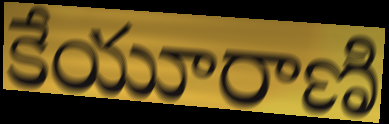
కేయూరాణి